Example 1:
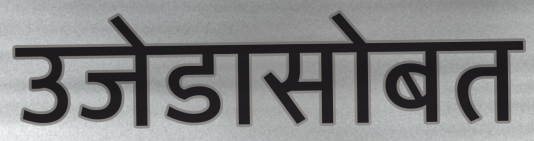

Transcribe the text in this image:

उजेडासोबत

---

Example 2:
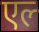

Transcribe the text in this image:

एल्‍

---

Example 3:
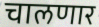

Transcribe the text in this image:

चालणार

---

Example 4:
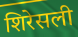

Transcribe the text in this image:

शिरेसली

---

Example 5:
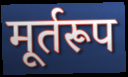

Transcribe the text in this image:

मूर्तरूप